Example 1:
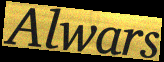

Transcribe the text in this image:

Alwars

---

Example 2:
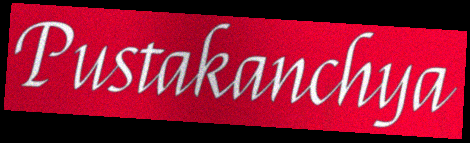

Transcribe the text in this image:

Pustakanchya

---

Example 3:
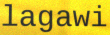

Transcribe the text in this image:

lagawi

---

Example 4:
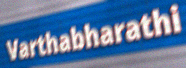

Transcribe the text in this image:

Varthabharathi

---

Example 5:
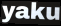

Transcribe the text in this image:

yaku